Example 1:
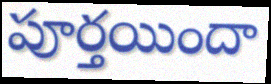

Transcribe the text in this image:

పూర్తయిందా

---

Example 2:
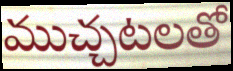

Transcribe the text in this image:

ముచ్చటలతో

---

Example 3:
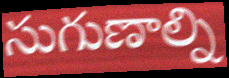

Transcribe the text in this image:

సుగుణాల్ని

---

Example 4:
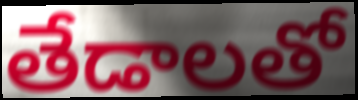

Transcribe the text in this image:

తేడాలతో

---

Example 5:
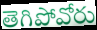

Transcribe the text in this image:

తెగిపోవోరు